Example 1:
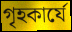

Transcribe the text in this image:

গৃহকার্যে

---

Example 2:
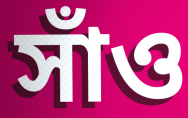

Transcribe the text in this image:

সাঁও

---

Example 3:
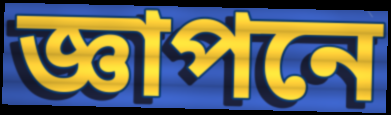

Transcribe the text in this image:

জ্ঞাপনে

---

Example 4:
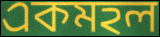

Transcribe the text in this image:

একমহল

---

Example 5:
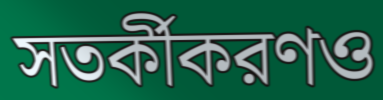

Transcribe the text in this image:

সতর্কীকরণও